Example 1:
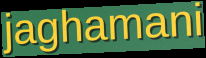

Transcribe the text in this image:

jaghamani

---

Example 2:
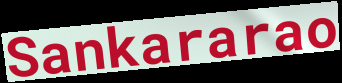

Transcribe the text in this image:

Sankararao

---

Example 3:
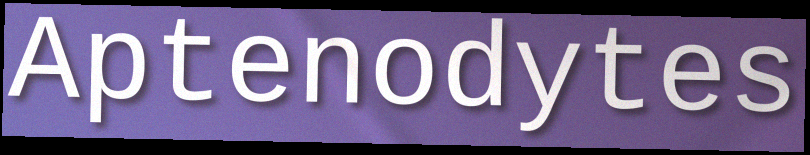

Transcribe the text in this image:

Aptenodytes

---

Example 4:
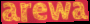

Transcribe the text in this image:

arewa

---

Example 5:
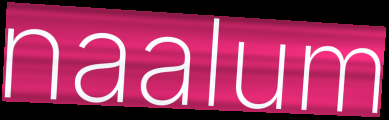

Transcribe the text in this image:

naalum